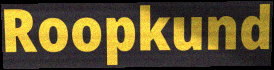
Roopkund